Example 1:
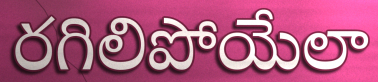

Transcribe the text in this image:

రగిలిపోయేలా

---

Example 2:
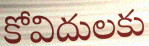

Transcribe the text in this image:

కోవిదులకు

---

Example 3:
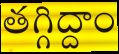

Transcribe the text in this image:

తగ్గిద్దాం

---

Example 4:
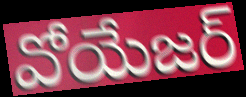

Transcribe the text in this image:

వోయేజర్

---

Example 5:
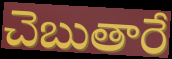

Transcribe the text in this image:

చెబుతారే